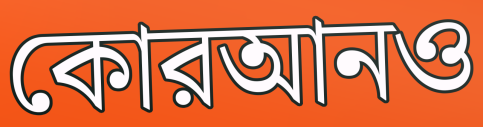
কোরআনও